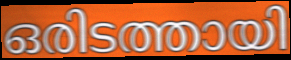
ഒരിടത്തായി